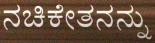
ನಚಿಕೇತನನ್ನು